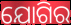
ଯୋଗିର